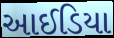
આઈડિયા